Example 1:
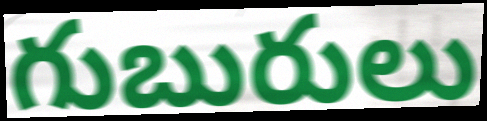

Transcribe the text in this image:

గుబురులు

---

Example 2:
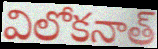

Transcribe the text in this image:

విలోకనాత్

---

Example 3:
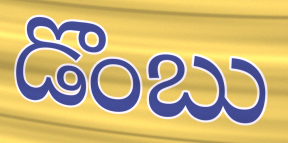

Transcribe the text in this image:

డొంబు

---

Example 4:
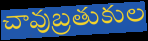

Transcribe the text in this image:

చావుబ్రతుకుల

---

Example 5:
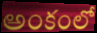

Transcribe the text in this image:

అంకంలో